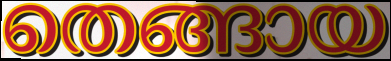
തെങ്ങായ